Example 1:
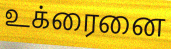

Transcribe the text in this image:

உக்ரைனை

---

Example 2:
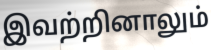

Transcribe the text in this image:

இவற்றினாலும்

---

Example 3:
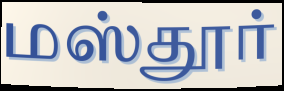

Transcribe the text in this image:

மஸ்தூர்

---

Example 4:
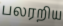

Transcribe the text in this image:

பலரறிய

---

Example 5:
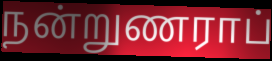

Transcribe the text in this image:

நன்றுணராப்